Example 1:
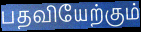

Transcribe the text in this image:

பதவியேற்கும்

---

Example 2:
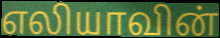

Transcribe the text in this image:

எலியாவின்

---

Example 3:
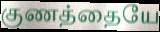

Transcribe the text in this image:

குணத்தையே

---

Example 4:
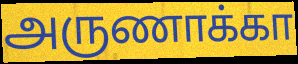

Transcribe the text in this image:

அருணாக்கா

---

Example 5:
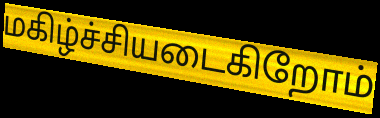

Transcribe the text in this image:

மகிழ்ச்சியடைகிறோம்